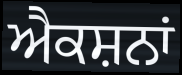
ਐਕਸ਼ਨਾਂ